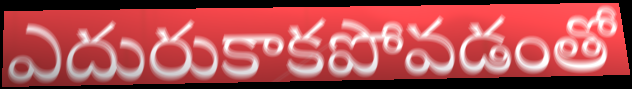
ఎదురుకాకపోవడంతో